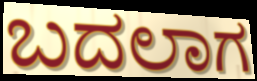
ಬದಲಾಗ